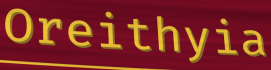
Oreithyia